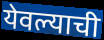
येवल्याची